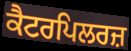
ਕੈਟਰਪਿਲਰਜ਼